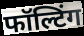
फॉल्टिंग